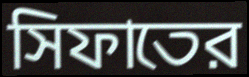
সিফাতের